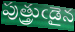
పుత్త్రుఁడైన